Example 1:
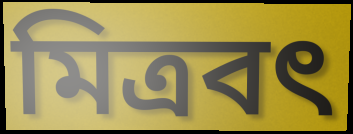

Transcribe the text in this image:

মিত্রবৎ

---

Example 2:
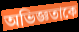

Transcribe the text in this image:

অভিজ্ঞতাকে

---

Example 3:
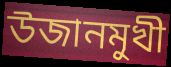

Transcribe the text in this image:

উজানমুখী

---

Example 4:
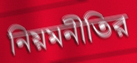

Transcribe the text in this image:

নিয়মনীতির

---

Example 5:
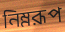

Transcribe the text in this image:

নিম্নরূপ